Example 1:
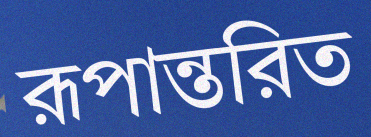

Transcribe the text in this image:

রূপান্তরিত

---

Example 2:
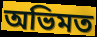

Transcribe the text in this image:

অভিমত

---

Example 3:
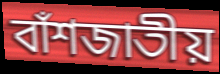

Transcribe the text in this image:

বাঁশজাতীয়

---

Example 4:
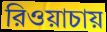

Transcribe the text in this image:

রিওয়াচায়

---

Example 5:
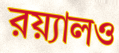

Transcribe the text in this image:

রয়্যালও